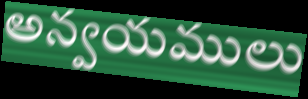
అన్వయములు